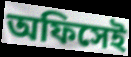
অফিসেই